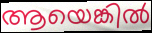
ആയെങ്കിൽ